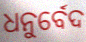
ଧନୁର୍ବେଦ